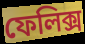
ফেলিক্স